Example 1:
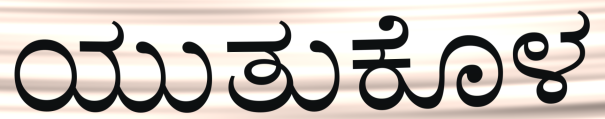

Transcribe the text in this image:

ಯುತುಕೊಳ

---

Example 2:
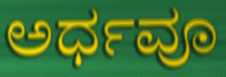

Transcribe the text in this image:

ಅರ್ಧವೂ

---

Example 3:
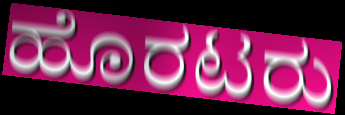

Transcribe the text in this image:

ಹೊರಟರು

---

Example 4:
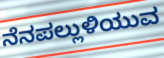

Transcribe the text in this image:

ನೆನಪಲ್ಲುಳಿಯುವ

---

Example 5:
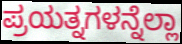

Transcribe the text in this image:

ಪ್ರಯತ್ನಗಳನ್ನೆಲ್ಲಾ